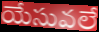
యేసువలే